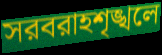
সরবরাহশৃঙ্খলে